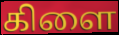
கிளை